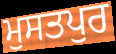
ਮੁਸਤਪੁਰ